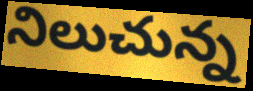
నిలుచున్న